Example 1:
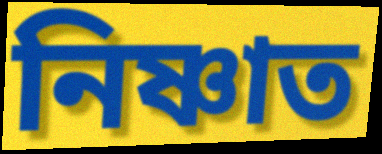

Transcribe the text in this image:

নিষ্ণাত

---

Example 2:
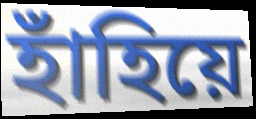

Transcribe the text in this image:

হাঁহিয়ে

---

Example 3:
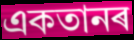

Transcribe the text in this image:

একতানৰ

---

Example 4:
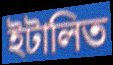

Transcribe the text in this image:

ইটালিত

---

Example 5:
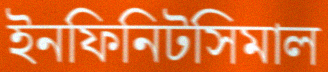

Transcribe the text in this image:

ইনফিনিটসিমাল